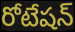
రోటేషన్